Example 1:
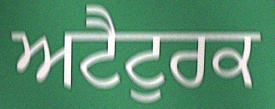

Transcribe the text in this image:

ਅਟੈਟੁਰਕ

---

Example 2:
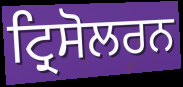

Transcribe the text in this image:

ਟ੍ਰਿਸੋਲਰਨ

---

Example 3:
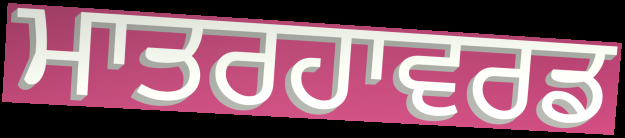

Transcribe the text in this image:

ਮਾਤਰਹਾਵਰਡ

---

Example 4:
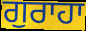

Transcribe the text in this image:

ਗੁਰਾਹਾ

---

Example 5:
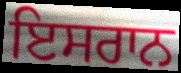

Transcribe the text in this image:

ਇਸਰਾਨ